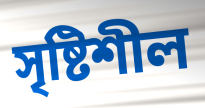
সৃষ্টিশীল